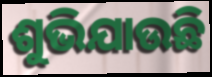
ଶୁଭିଯାଉଛି